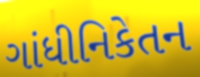
ગાંધીનિકેતન